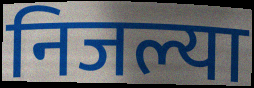
निजल्या